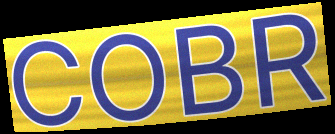
COBR